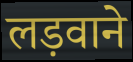
लड़वाने